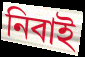
নিবাই